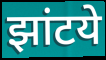
झांटये